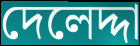
দেলেদ্দা